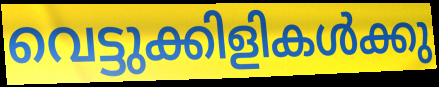
വെട്ടുക്കിളികൾക്കു